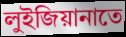
লুইজিয়ানাতে